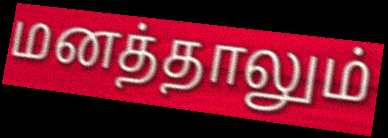
மனத்தாலும்